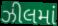
ઝીલમાં